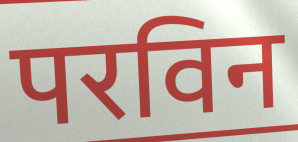
परविन